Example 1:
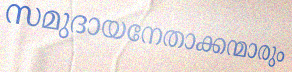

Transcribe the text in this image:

സമുദായനേതാക്കന്മാരും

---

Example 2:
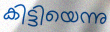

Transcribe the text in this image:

കിട്ടിയെന്നു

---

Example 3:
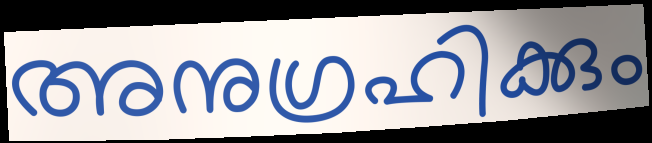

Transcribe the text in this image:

അനുഗ്രഹിക്കും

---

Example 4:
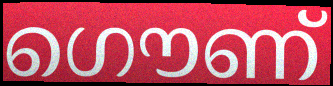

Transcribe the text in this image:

ഗൌണ്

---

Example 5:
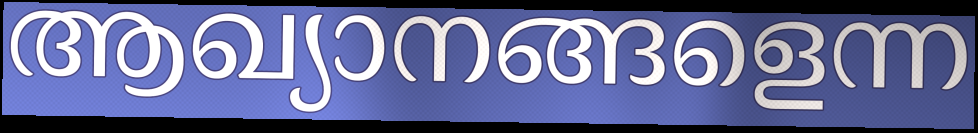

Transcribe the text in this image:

ആഖ്യാനങ്ങളെന്ന